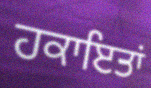
ਹਕਾਇਤਾਂ